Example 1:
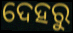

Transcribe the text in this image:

ଦେହରୁ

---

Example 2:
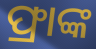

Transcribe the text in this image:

ଫ୍ରାଙ୍କ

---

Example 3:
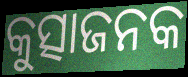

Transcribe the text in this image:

କୁତ୍ସାଜନକ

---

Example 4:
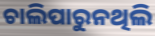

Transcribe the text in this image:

ଚାଲିପାରୁନଥିଲି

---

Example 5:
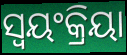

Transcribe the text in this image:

ସ୍ବୟଂକ୍ରିୟା